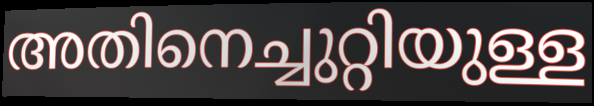
അതിനെച്ചുറ്റിയുള്ള